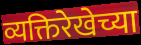
व्यक्तिरेखेच्या